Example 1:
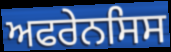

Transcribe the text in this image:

ਅਫਰੇਨਸਿਸ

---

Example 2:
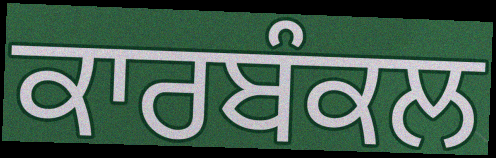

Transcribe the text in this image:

ਕਾਰਬੰਕਲ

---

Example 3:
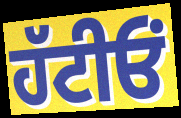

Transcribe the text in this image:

ਹੱਟੀਓਂ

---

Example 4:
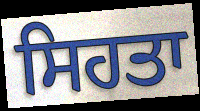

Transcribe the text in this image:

ਸਿਹਤਾ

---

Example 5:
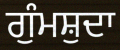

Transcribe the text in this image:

ਗੁੰਮਸ਼ੁਦਾ